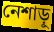
নেশাড়ু